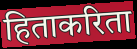
हिताकरिता